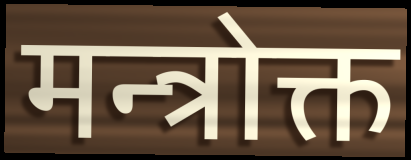
मन्त्रोक्त